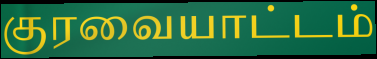
குரவையாட்டம்